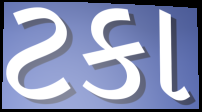
ટકા